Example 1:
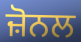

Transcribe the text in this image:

ਜ਼ੋਨਲ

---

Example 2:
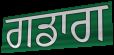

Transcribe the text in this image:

ਗਡਾਗ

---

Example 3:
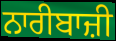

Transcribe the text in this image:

ਨਾਰੀਬਾਜ਼ੀ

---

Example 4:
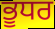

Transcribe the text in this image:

ਭੂਧਰ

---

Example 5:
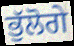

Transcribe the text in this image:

ਭੁੱਲੋਗੇ